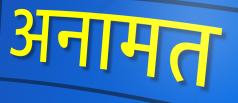
अनामत